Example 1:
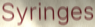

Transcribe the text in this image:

Syringes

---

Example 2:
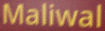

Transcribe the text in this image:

Maliwal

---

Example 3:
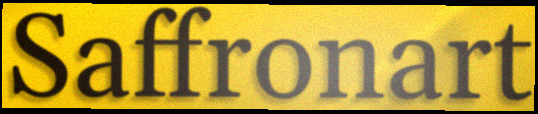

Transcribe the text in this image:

Saffronart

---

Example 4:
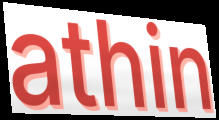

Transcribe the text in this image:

athin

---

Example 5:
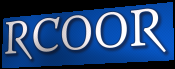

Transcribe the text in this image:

RCOOR